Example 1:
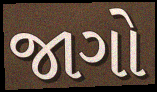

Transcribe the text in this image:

જાગો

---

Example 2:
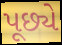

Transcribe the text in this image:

પૂછ્યે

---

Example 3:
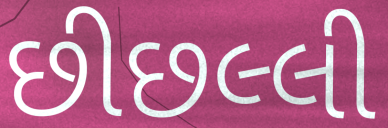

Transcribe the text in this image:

છીછલ્લી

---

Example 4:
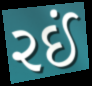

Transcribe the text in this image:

રઈં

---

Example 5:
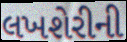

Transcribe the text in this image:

લખશેરીની